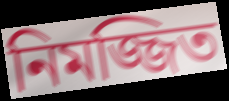
নিমজ্জিত